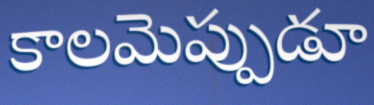
కాలమెప్పుడూ